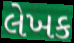
લેખક